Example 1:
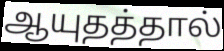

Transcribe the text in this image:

ஆயுதத்தால்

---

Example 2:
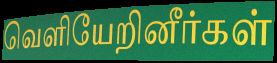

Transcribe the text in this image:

வெளியேறினீர்கள்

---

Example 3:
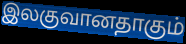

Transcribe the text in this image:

இலகுவானதாகும்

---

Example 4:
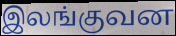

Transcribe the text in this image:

இலங்குவன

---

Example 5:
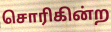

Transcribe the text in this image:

சொரிகின்ற